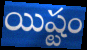
యిష్టం